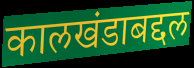
कालखंडाबद्दल